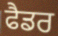
ਫੈਡਰ